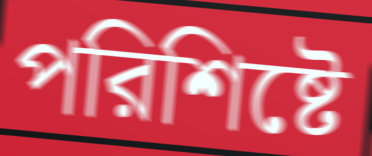
পরিশিষ্টে